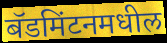
बॅडमिंटनमधील